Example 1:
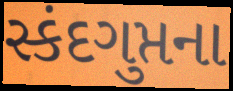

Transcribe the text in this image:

સ્કંદગુપ્તના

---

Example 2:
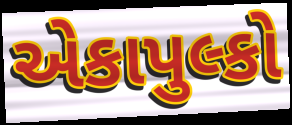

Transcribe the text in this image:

એકાપુલ્કો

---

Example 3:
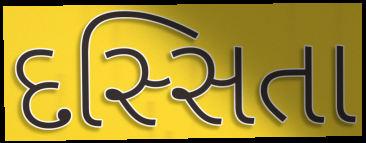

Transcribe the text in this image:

દસ્સિતા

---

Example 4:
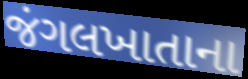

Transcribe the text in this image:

જંગલખાતાના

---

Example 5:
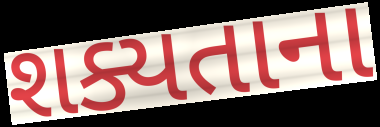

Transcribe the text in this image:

શક્યતાના